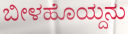
ಬೀಳಹೊಯ್ದನು